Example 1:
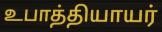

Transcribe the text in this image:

உபாத்தியாயர்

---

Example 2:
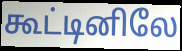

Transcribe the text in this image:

கூட்டினிலே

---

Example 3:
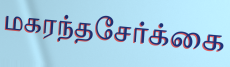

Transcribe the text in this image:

மகரந்தசேர்க்கை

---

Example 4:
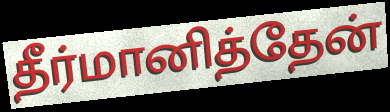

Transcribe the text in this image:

தீர்மானித்தேன்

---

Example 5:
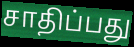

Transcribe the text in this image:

சாதிப்பது